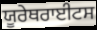
ਯੂਰੇਥਰਾਈਟਸ